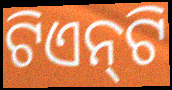
ଟିଏନ୍‌ଟି